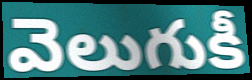
వెలుగుకీ